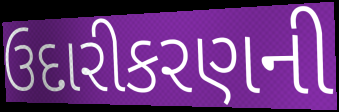
ઉદારીકરણની